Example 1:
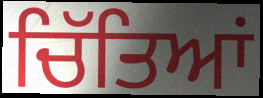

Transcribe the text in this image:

ਚਿੱਤਿਆਂ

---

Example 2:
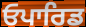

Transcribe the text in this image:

ਓਪਾਰਿਡ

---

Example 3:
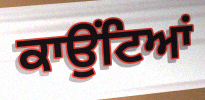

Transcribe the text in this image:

ਕਾਉਂਟਿਆਂ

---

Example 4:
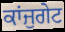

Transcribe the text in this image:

ਕਾਂਜੁਗੇਟ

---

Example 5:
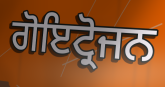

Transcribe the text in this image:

ਗੋਇਟ੍ਰੋਜਨ